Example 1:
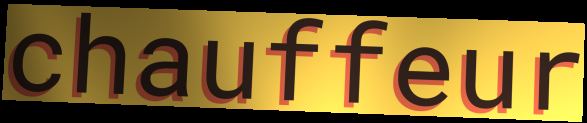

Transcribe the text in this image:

chauffeur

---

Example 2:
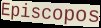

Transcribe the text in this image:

Episcopos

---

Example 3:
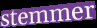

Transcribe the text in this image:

stemmer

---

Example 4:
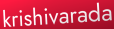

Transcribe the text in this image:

krishivarada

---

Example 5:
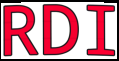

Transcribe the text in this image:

RDI